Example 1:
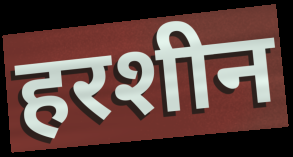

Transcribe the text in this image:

हरशीन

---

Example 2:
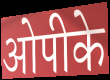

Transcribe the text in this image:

ओपीके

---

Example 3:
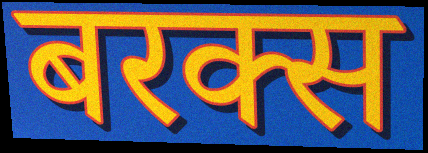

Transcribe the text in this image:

बरक्स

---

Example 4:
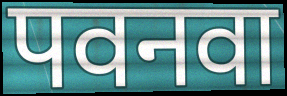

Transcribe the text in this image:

पवनवा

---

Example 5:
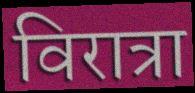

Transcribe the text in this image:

विरात्रा